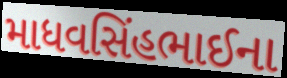
માધવસિંહભાઈના